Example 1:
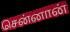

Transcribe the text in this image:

சென்னான்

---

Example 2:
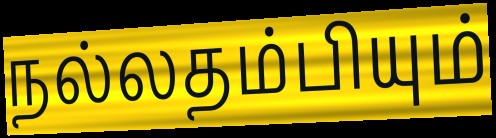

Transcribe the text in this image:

நல்லதம்பியும்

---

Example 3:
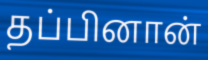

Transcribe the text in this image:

தப்பினான்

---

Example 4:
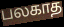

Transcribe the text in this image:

பலகாத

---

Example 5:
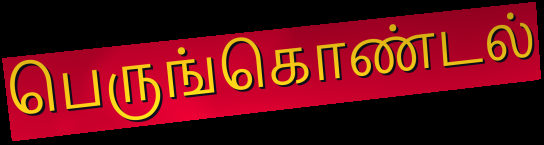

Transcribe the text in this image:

பெருங்கொண்டல்